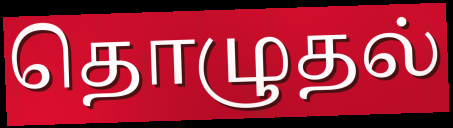
தொழுதல்